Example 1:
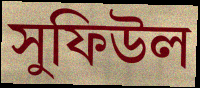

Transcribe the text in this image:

সুফিউল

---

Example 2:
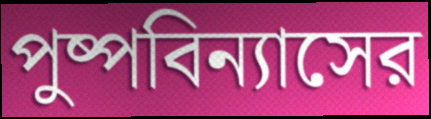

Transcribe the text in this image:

পুষ্পবিন্যাসের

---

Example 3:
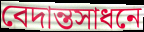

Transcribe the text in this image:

বেদান্তসাধনে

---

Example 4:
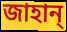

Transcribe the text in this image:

জাহান্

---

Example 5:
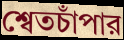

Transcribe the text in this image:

শ্বেতচাঁপার